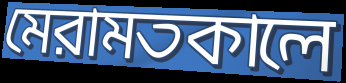
মেরামতকালে